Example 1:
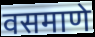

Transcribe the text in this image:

वसमाणे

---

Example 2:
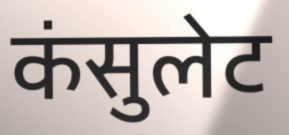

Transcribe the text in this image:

कंसुलेट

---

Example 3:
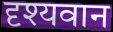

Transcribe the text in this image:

दृश्यवान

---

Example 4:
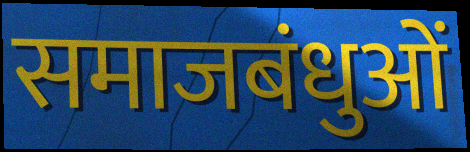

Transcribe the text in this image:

समाजबंधुओं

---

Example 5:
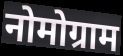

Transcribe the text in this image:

नोमोग्राम